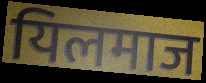
यिलमाज